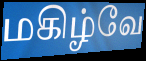
மகிழ்வே